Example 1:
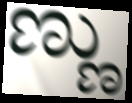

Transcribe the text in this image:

ಣ್ಣು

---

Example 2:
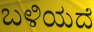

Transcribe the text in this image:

ಬಳಿಯದೆ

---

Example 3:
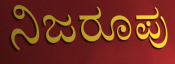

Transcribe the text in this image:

ನಿಜರೂಪು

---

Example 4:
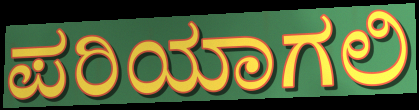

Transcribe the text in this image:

ಪರಿಯಾಗಲಿ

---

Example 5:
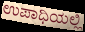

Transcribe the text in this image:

ಉಪಾಧಿಯಲ್ಲಿ